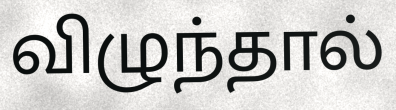
விழுந்தால்